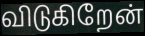
விடுகிறேன்